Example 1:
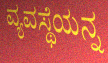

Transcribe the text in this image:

ವ್ಯವಸ್ಥೆಯನ್ನ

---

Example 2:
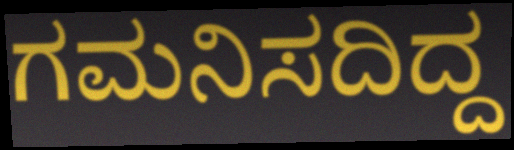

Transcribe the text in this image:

ಗಮನಿಸದಿದ್ದ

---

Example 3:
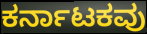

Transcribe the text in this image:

ಕರ್ನಾಟಕವು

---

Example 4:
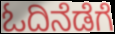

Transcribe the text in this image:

ಓದಿನೆಡೆಗೆ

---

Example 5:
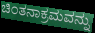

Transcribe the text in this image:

ಚಿಂತನಾಕ್ರಮವನ್ನು